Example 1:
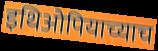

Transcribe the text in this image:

इथिओपियाच्याच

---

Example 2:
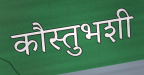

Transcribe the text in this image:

कौस्तुभशी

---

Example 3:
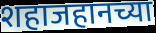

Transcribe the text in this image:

शहाजहानच्या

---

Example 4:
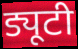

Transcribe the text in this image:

ड्यूटी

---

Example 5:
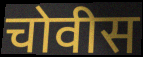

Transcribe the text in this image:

चोवीस